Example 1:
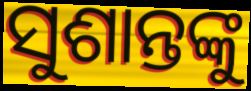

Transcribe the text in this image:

ସୁଶାନ୍ତଙ୍କୁ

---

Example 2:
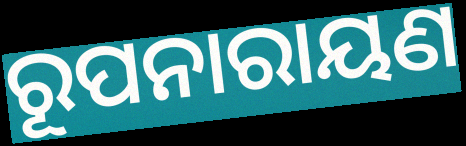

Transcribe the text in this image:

ରୂପନାରାୟଣ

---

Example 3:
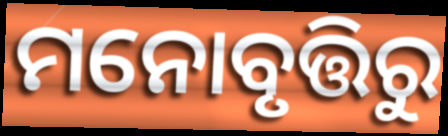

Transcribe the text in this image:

ମନୋବୃତ୍ତିରୁ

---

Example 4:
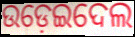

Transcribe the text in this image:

ଉଡ଼େଇଦେଲ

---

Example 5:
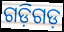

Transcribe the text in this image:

ଗଡ଼ିଗଡ଼